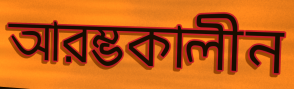
আরম্ভকালীন